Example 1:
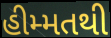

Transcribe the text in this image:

હીમ્મતથી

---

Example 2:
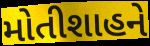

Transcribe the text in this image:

મોતીશાહને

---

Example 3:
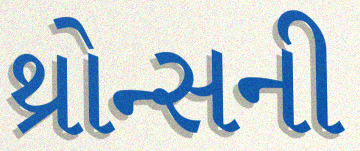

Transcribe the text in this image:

થ્રોન્સની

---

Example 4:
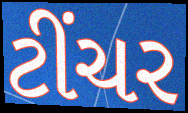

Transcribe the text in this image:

ટીંચર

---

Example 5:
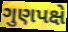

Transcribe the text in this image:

ગુણપક્ષે